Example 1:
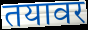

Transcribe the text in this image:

तयावर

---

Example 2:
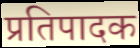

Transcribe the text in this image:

प्रतिपादक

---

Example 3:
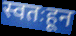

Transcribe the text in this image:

स्वतःहून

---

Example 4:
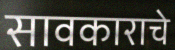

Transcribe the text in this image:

सावकाराचे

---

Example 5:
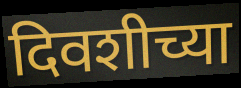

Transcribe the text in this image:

दिवशीच्या